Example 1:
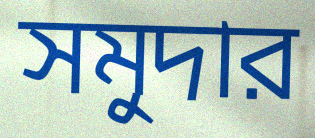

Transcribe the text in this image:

সমুদার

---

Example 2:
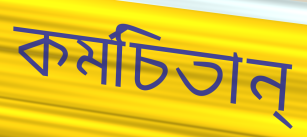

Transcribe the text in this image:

কর্মচিতান্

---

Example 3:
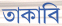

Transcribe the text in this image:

তাকাবি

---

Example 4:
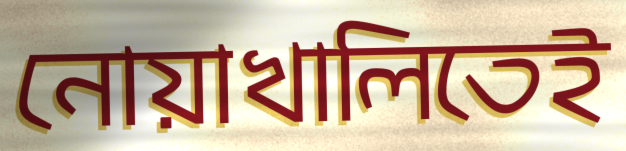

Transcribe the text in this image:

নোয়াখালিতেই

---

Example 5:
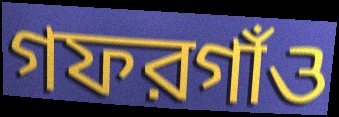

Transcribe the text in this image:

গফরগাঁও